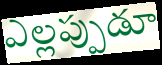
ఎల్లప్పుడూ